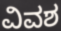
ವಿವಶ